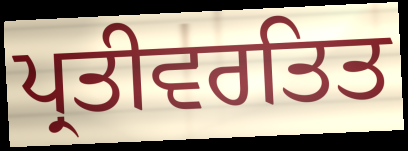
ਪ੍ਰਤੀਵਰਤਿਤ